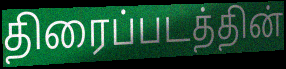
திரைப்படத்தின்